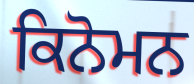
ਕਿਨੋਮਨ